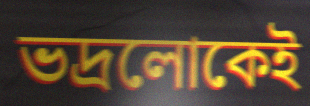
ভদ্রলোকেই